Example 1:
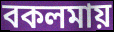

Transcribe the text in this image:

বকলমায়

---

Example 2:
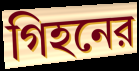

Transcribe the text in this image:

গিহনের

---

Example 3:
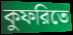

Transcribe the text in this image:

কুফরিতে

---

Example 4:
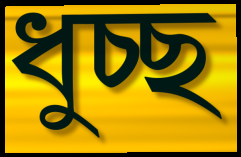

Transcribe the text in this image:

ধুচ্ছ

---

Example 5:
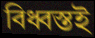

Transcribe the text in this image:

বিধ্বস্তই